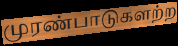
முரண்பாடுகளற்ற